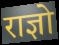
राज्ञो